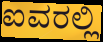
ಐವರಲ್ಲಿ